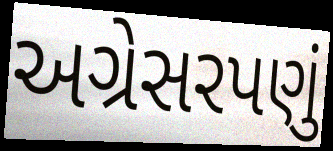
અગ્રેસરપણું